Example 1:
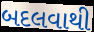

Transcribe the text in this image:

બદલવાથી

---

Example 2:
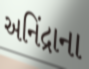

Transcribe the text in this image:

અનિંદ્રાના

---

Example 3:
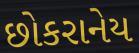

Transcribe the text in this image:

છોકરાનેય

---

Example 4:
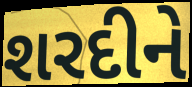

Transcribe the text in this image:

શરદીને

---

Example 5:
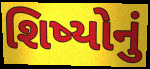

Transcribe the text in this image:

શિષ્યોનું